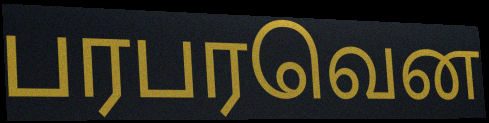
பரபரவென